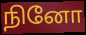
நினோ